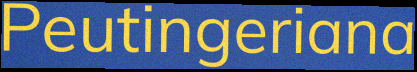
Peutingeriana